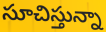
సూచిస్తున్నా